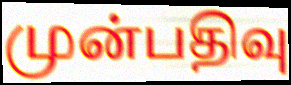
முன்பதிவு